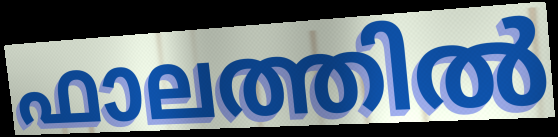
ഫാലത്തിൽ